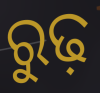
ରୁଢ଼